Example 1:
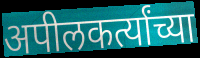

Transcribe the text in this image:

अपीलकर्त्यांच्या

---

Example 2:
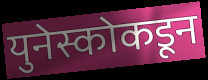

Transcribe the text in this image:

युनेस्कोकडून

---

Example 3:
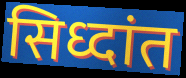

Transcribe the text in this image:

सिध्दांत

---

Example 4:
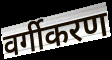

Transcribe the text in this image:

वर्गीकरण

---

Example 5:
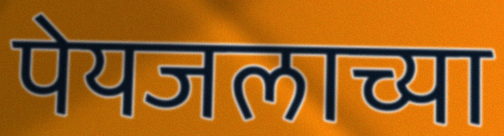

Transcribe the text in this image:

पेयजलाच्या